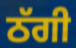
ਠੱਗੀ